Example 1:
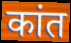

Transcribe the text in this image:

कांत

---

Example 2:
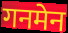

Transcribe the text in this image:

गनमेन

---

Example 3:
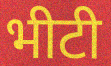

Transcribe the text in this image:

भीटी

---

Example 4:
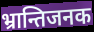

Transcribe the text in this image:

भ्रान्तिजनक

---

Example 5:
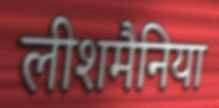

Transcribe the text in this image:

लीशमैनिया